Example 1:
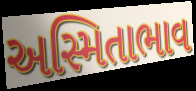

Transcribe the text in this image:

અસ્મિતાભાવ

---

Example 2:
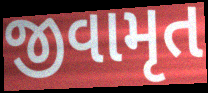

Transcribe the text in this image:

જીવામૃત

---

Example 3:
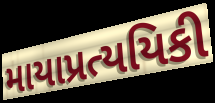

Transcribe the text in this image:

માયાપ્રત્યયિકી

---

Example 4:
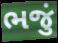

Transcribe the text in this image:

ભજું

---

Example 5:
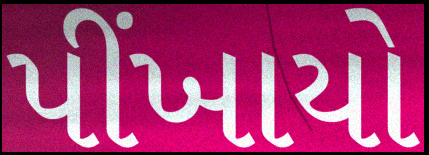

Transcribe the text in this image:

પીંખાયો